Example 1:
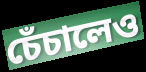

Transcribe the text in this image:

চেঁচালেও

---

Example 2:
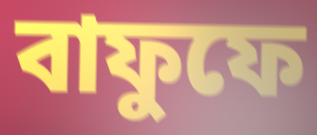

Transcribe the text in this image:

বাফুফে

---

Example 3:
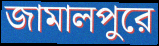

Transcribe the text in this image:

জামালপুরে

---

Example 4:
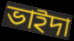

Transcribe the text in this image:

ভাইদা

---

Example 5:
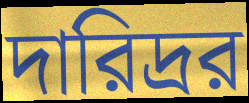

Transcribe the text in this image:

দারিদ্রর